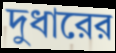
দুধারের